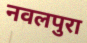
नवलपुरा